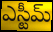
ఎస్టీమ్